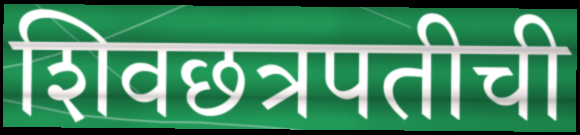
शिवछत्रपतीची